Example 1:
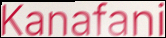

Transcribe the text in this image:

Kanafani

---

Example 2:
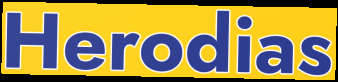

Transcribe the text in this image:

Herodias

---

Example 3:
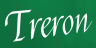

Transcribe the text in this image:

Treron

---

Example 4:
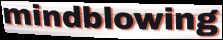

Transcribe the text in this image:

mindblowing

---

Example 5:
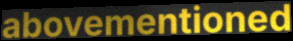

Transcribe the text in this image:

abovementioned